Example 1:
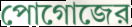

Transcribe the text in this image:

পোগোজের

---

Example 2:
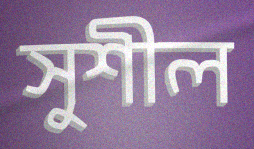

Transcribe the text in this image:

সুশীল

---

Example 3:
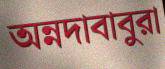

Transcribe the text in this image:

অন্নদাবাবুরা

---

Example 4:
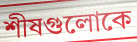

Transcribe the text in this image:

শীষগুলোকে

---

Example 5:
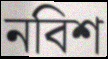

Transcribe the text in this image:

নবিশ